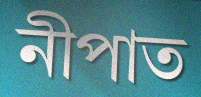
নীপাত